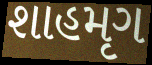
શાહમૃગ